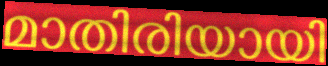
മാതിരിയായി